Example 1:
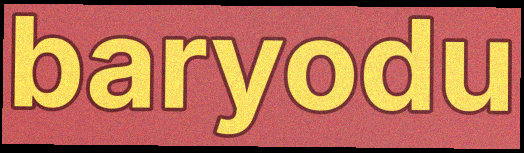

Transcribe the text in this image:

baryodu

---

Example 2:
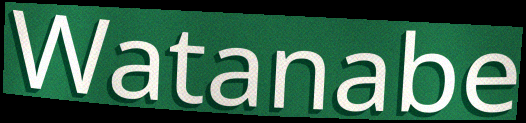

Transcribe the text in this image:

Watanabe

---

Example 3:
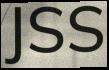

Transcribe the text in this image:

JSS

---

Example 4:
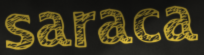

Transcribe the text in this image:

saraca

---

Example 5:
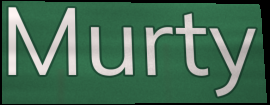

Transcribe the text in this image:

Murty